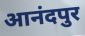
आनंदपुर